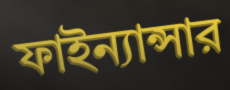
ফাইন্যান্সার